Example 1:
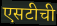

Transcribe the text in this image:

एसटीची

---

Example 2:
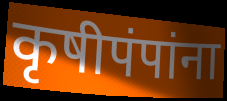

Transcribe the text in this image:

कृषीपंपांना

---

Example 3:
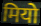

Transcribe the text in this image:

मियो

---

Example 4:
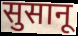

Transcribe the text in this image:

सुसानू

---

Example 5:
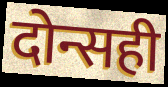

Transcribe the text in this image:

दोन्सही